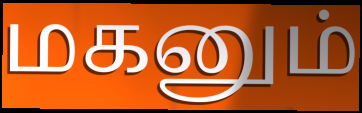
மகனும்